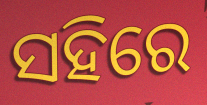
ସହିରେ